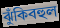
ঝুঁকিবহুল